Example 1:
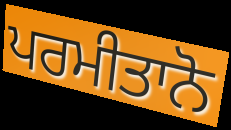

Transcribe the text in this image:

ਪਰਮੀਤਾਨੋ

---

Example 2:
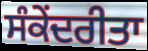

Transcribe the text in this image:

ਸੰਕੇਂਦਰੀਤਾ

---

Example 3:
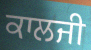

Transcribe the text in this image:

ਕਾਲਜੀ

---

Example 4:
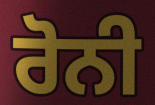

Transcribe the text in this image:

ਰੋਨੀ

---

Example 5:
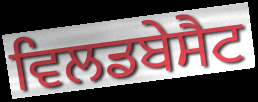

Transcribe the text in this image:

ਵਿਲਡਬੇਸੈਟ